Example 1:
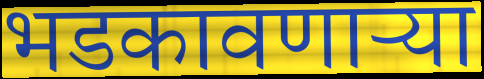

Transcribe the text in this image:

भडकावणाऱ्या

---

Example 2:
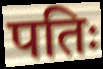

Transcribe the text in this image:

पतिः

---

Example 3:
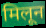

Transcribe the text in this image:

मिलून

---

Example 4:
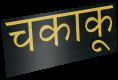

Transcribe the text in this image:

चकाकू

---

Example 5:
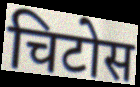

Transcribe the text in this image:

चिटोस